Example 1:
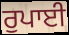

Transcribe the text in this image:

ਰੁਪਾਈ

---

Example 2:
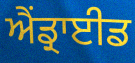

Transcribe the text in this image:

ਐਂਡ੍ਰਾਈਡ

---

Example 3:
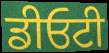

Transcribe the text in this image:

ਡੀਓਟੀ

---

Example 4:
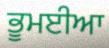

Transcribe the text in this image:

ਭੂਮਈਆ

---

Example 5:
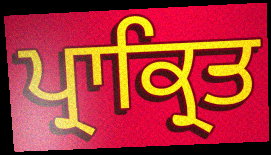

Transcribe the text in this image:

ਪ੍ਰਾਕ੍ਰਿਤ